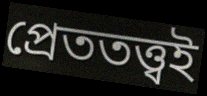
প্রেততত্ত্বই